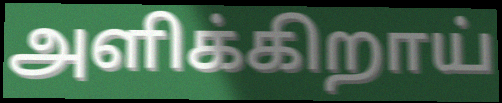
அளிக்கிறாய்